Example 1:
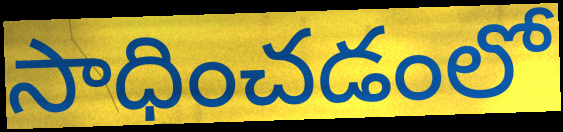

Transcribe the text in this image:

సాధించడంలో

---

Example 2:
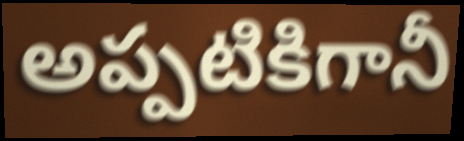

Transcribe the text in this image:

అప్పటికిగానీ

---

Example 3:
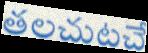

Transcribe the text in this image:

తలచుటచే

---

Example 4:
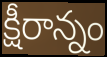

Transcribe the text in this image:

క్షీరాన్నం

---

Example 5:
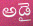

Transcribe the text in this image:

అడై